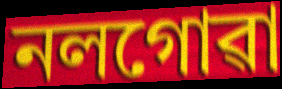
নলগোৱা